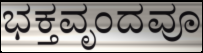
ಭಕ್ತವೃಂದವೂ